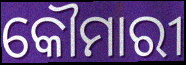
କୌମାରୀ